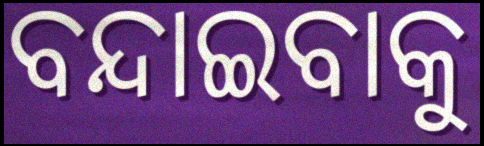
ବନ୍ଦାଇବାକୁ